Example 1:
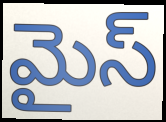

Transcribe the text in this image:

మైస్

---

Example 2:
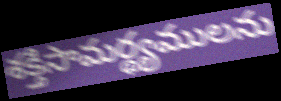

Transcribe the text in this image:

శక్తిసామర్థ్యములను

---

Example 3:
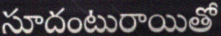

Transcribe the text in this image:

సూదంటురాయితో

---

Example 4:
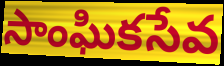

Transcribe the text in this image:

సాంఘికసేవ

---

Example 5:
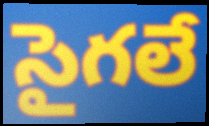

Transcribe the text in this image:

సైగలే